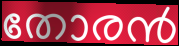
തോരൻ